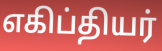
எகிப்தியர்